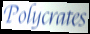
Polycrates